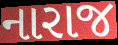
નારાજ